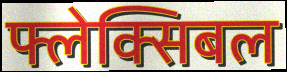
फ्लेक्सिबल